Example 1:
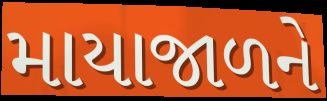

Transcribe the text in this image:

માયાજાળને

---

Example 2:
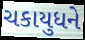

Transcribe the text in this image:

ચકાયુધને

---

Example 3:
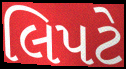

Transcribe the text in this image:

લિપટે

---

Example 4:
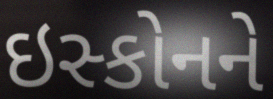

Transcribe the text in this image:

ઇસ્કોનને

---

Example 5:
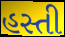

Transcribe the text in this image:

હસ્તી